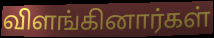
விளங்கினார்கள்